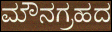
ಮೌನಗ್ರಹದ